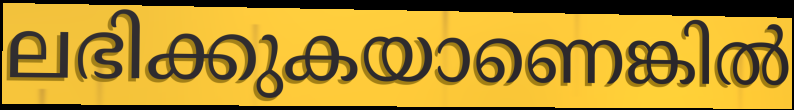
ലഭിക്കുകയാണെങ്കിൽ